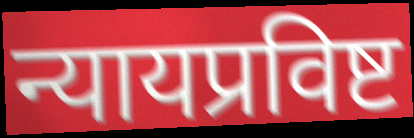
न्यायप्रविष्ट